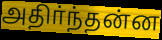
அதிர்ந்தன்ன